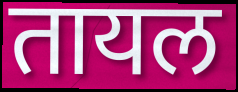
तायल